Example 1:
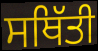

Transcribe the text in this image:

ਸਥਿੱਤੀ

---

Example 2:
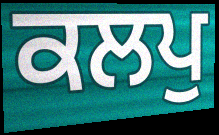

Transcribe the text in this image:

ਕਲਪੁ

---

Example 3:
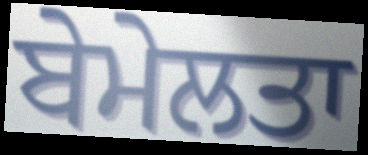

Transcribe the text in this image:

ਬੇਮੇਲਤਾ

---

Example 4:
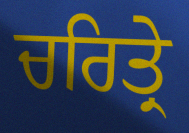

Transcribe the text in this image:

ਚਰਿਤ੍ਰੇ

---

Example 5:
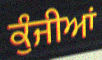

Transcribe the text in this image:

ਕੁੰਜੀਆਂ